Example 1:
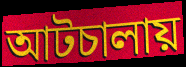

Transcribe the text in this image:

আটচালায়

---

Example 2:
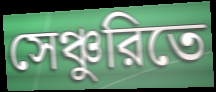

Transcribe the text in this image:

সেঞ্চুরিতে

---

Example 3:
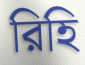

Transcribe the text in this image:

রিহি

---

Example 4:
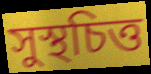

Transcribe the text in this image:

সুস্থচিত্ত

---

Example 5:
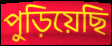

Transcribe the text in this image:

পুড়িয়েছি